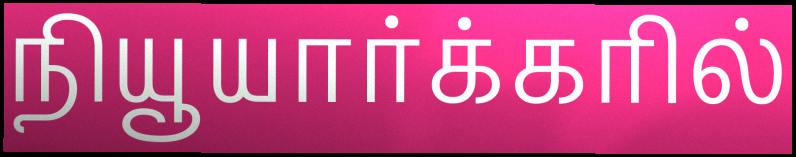
நியூயார்க்கரில்